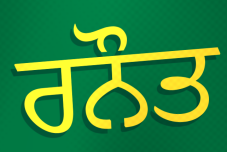
ਰਨੌਤ